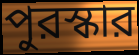
পুরস্কার